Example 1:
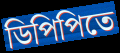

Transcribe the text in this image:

ডিপিপিতে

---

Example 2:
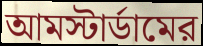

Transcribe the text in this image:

আমস্টার্ডামের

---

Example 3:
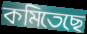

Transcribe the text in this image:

কমিতেছে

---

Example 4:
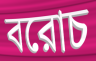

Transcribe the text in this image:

বরোচ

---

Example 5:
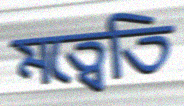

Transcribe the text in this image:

মত্বেতি